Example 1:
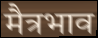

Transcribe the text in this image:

मैत्रभाव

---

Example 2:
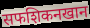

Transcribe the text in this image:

सफशिकनखान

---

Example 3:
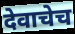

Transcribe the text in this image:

देवाचेच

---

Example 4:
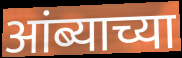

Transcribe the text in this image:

आंब्याच्या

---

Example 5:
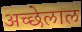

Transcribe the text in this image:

अच्छेलाल